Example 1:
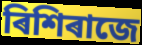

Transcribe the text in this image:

ৰিশিৰাজে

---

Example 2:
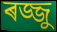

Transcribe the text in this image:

ৰজ্জু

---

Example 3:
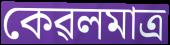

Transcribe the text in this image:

কেৱলমাত্ৰ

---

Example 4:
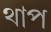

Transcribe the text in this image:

থাপ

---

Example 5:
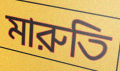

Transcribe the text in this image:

মাৰুতি